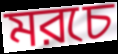
মরচে